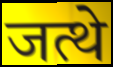
जत्थे